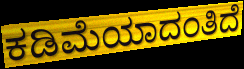
ಕಡಿಮೆಯಾದಂತಿದೆ